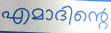
എമാദിന്റെ